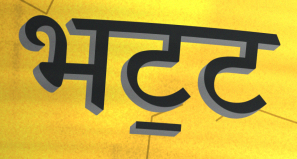
भट॒ट